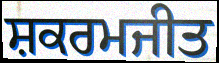
ਸ਼ਕਰਮਜੀਤ